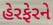
હેરફેરને